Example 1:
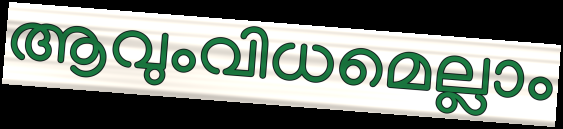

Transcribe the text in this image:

ആവുംവിധമെല്ലാം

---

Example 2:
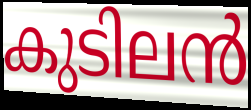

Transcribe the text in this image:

കുടിലൻ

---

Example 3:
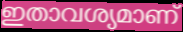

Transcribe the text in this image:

ഇതാവശ്യമാണ്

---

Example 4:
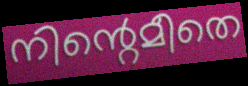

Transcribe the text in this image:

നിന്റെമീതെ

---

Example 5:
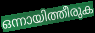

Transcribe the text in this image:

ഒന്നായിത്തീരുക